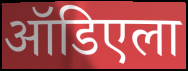
ऑडिएला